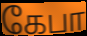
கேபா